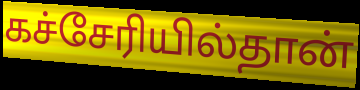
கச்சேரியில்தான்